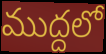
ముద్దలో